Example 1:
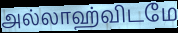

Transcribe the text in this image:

அல்லாஹ்விடமே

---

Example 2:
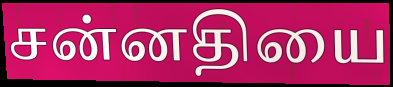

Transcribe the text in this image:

சன்னதியை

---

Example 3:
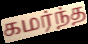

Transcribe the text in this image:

கமர்ந்த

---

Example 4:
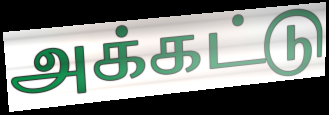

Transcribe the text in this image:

அக்கட்டு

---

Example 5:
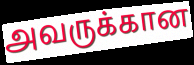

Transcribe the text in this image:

அவருக்கான